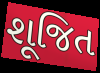
શૂજિત